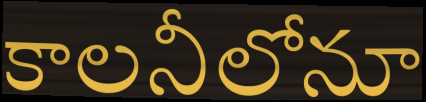
కాలనీలోనూ